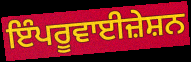
ਇੰਪਰੂਵਾਈਜ਼ੇਸ਼ਨ